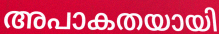
അപാകതയായി